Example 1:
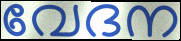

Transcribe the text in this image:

വേദന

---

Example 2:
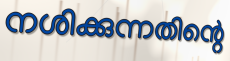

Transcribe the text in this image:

നശിക്കുന്നതിന്റെ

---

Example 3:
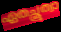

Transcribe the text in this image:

ഏതച്ഛ്രുത്വാ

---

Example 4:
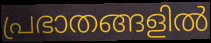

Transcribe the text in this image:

പ്രഭാതങ്ങളിൽ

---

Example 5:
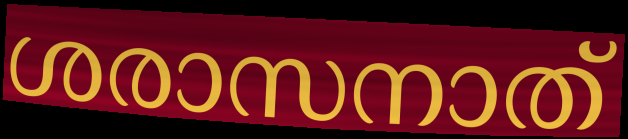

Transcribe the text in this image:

ശരാസനാത്